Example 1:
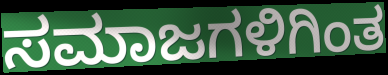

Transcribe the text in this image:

ಸಮಾಜಗಳಿಗಿಂತ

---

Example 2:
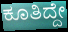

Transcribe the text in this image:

ಕೂತಿದ್ದೇ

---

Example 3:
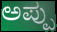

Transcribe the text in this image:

ಅಪ್ಪು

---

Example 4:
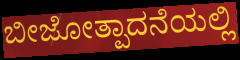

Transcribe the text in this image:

ಬೀಜೋತ್ಪಾದನೆಯಲ್ಲಿ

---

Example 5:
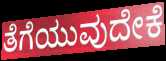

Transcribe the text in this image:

ತೆಗೆಯುವುದೇಕೆ